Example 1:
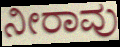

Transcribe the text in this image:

ನೀರಾವು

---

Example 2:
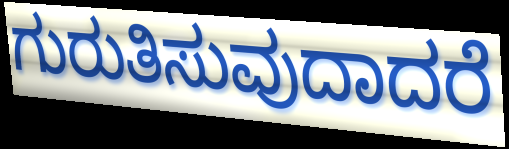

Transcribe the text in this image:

ಗುರುತಿಸುವುದಾದರೆ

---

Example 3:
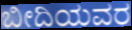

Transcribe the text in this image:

ಬೀದಿಯವರ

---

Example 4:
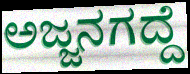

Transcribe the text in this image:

ಅಜ್ಜನಗದ್ದೆ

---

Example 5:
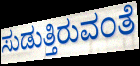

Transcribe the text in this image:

ಸುಡುತ್ತಿರುವಂತೆ